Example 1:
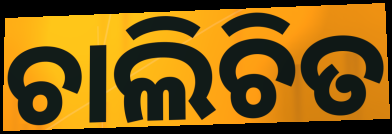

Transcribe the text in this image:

ଚାଲିଚିତ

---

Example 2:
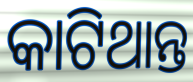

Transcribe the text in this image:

କାଟିଥାନ୍ତ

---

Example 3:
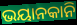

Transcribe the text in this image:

ଭୟାନକାନି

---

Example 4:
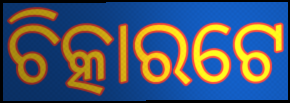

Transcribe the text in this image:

ଚିତ୍କାରଟେ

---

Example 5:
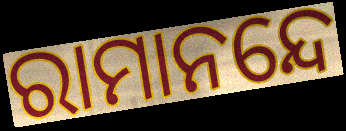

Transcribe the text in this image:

ରାମାନନ୍ଦେ